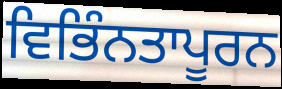
ਵਿਭਿੰਨਤਾਪੂਰਨ